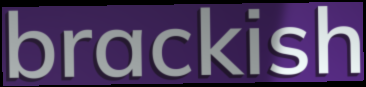
brackish